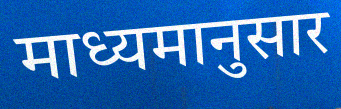
माध्यमानुसार